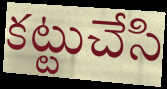
కట్టుచేసి